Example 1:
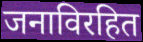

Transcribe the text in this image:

जनाविरहित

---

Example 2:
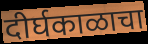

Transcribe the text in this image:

दीर्घकाळाचा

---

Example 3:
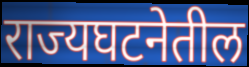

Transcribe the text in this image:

राज्यघटनेतील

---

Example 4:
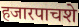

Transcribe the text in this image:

हजारपाचशे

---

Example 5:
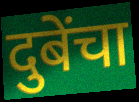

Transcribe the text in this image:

दुबेंचा